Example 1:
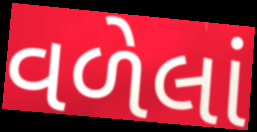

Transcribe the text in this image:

વળેલાં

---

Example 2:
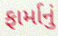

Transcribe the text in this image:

ફાર્માનું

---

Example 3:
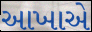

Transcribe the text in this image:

આખાએ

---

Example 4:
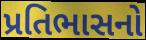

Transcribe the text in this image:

પ્રતિભાસનો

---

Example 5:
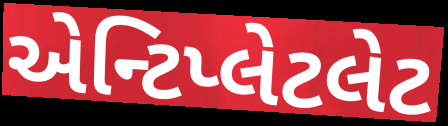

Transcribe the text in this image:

એન્ટિપ્લેટલેટ